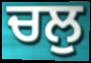
ਚਲੁ